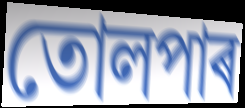
তোলপাৰ